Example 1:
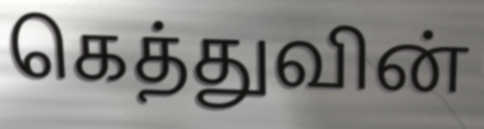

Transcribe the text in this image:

கெத்துவின்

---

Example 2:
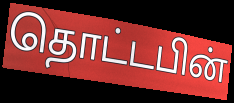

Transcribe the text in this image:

தொட்டபின்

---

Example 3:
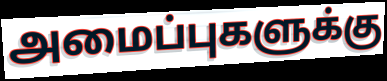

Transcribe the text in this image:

அமைப்புகளுக்கு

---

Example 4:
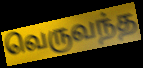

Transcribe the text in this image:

வெருவந்த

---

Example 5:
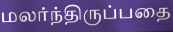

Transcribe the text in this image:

மலர்ந்திருப்பதை